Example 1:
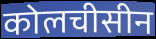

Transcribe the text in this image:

कोलचीसीन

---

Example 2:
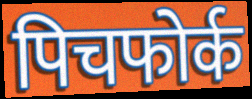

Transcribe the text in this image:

पिचफोर्क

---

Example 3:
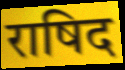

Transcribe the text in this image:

राषिद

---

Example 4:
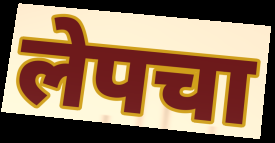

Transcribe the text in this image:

लेपचा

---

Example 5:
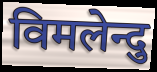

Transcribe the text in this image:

विमलेन्दु